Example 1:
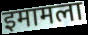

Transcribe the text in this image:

इमामला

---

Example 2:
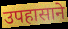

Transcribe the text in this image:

उपहासाने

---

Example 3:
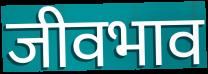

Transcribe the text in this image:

जीवभाव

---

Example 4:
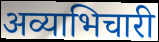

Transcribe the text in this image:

अव्याभिचारी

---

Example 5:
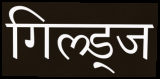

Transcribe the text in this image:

गिल्ड्ज